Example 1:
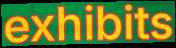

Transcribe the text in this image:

exhibits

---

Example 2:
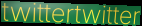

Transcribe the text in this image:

twittertwitter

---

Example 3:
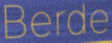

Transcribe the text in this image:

Berde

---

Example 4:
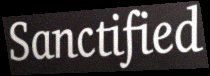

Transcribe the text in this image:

Sanctified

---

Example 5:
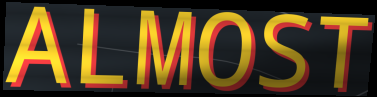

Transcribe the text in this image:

ALMOST